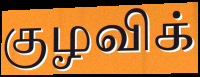
குழவிக்